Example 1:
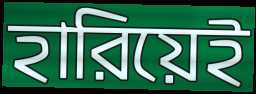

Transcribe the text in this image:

হারিয়েই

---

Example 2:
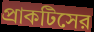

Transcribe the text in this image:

প্রাকটিসের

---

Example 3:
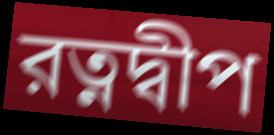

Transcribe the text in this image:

রত্নদ্বীপ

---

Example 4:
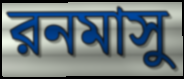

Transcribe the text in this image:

রনমাসু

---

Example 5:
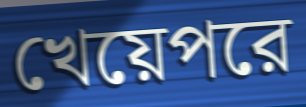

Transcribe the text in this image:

খেয়েপরে